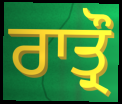
ਰਾਤ੍ਰੌ